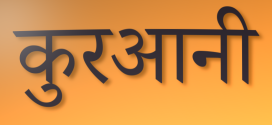
कुरआनी